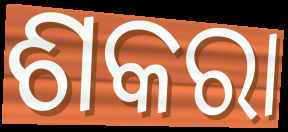
ଶକରା